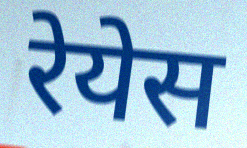
रेयेस